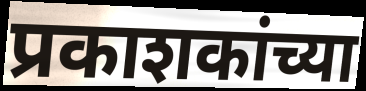
प्रकाशकांच्या